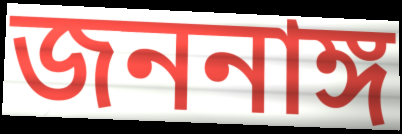
জননাঙ্গ